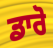
ਡਾਰੋ